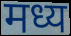
मध्य